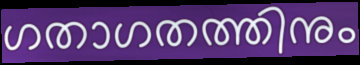
ഗതാഗതത്തിനും